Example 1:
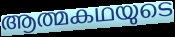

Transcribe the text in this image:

ആത്മകഥയുടെ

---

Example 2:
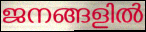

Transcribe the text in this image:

ജനങ്ങളിൽ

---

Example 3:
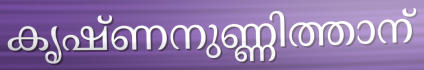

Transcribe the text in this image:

കൃഷ്ണനുണ്ണിത്താന്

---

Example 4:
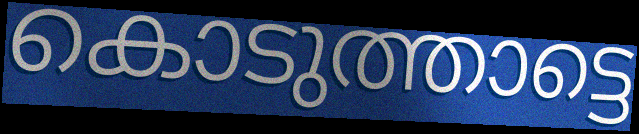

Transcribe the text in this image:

കൊടുത്താട്ടെ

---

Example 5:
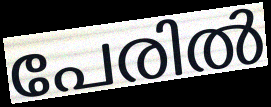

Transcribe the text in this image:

പേരിൽ